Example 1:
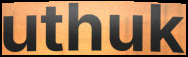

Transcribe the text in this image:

uthuk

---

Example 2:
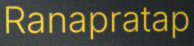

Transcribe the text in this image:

Ranapratap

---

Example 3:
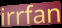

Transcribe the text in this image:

irrfan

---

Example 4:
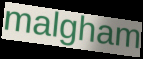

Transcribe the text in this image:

malgham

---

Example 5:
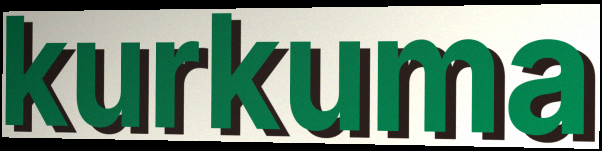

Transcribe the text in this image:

kurkuma